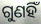
ଗୁଣହିଁ